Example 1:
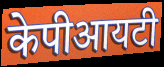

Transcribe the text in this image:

केपीआयटी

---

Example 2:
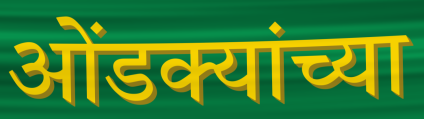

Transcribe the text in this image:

ओंडक्यांच्या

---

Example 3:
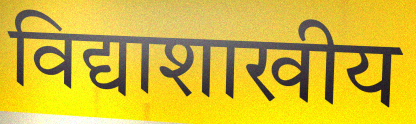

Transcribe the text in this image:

विद्याशाखीय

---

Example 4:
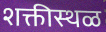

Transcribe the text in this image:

शक्तीस्थळ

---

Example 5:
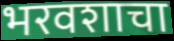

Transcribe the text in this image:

भरवशाचा